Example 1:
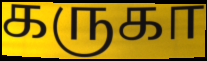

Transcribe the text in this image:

கருகா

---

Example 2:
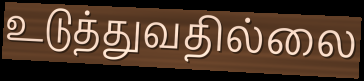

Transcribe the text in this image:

உடுத்துவதில்லை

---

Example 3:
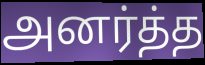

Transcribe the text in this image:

அனர்த்த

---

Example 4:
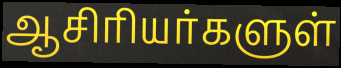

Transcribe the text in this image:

ஆசிரியர்களுள்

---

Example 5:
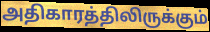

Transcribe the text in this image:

அதிகாரத்திலிருக்கும்